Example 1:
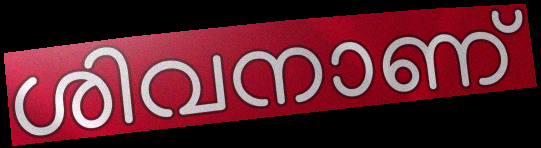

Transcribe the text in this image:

ശിവനാണ്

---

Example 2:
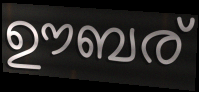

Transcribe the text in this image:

ഊബര്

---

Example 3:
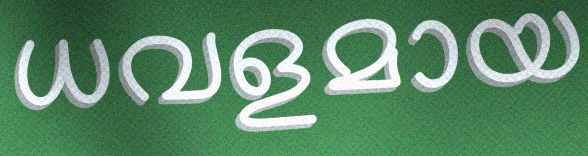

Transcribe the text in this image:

ധവളമായ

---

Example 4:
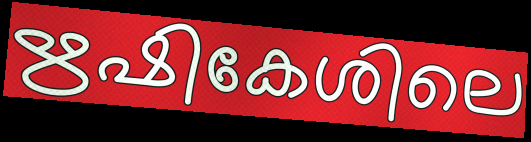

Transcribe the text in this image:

ഋഷികേശിലെ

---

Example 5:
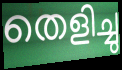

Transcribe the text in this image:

തെളിച്ചു